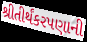
શ્રીતીર્થંકરપણાની